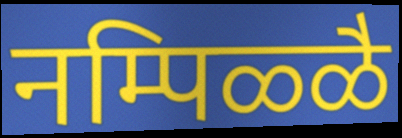
नम्पिळ्ळै